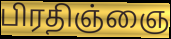
பிரதிஞ்ஞை